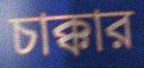
চাক্কার